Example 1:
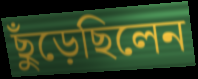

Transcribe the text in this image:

ছুঁড়েছিলেন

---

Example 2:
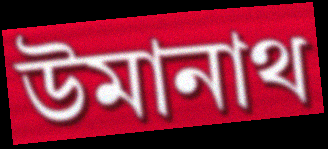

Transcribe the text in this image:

উমানাথ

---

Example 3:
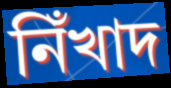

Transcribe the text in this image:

নিঁখাদ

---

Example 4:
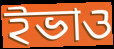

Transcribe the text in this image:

ইভাও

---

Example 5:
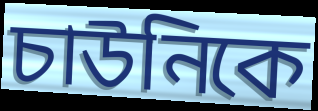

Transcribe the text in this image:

চাউনিকে